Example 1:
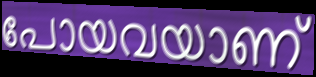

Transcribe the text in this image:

പോയവയാണ്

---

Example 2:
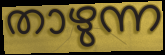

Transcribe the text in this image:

താഴുന്ന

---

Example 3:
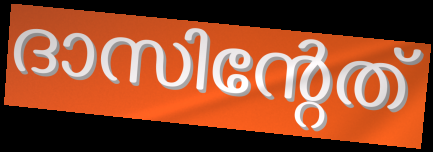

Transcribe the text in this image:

ദാസിന്റേത്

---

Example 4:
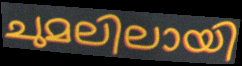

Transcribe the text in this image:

ചുമലിലായി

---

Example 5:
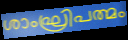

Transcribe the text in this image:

ശാംഘ്രിപത്മം